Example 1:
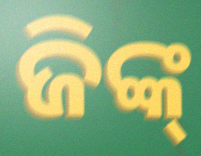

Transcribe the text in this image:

ଜିଙ୍କ୍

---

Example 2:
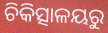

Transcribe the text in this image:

ଚିକିତ୍ସାଳୟରୁ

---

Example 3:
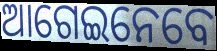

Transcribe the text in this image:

ଆଗେଇନେବେ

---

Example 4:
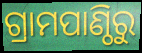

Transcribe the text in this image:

ଗ୍ରାମପାଣ୍ଠିରୁ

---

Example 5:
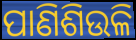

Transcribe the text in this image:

ପାଣିଶିଉଳି